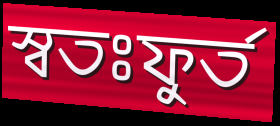
স্বতঃফুর্ত